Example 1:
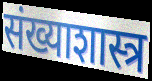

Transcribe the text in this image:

संख्याशास्त्र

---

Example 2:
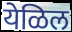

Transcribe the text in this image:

येळिल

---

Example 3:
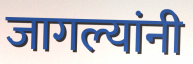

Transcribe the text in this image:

जागल्यांनी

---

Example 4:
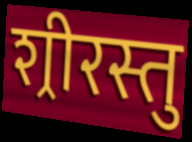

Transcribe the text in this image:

श्रीरस्तु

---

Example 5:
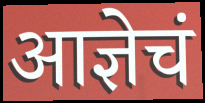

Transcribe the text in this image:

आज्ञेचं